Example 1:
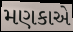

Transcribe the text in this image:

મણકાએ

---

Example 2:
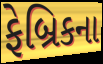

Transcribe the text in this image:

ફેબ્રિકના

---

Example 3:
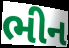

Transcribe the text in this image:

ભીન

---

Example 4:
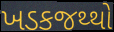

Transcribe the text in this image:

ખડકજથ્થો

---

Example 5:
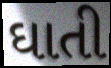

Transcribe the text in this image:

ઘાતી